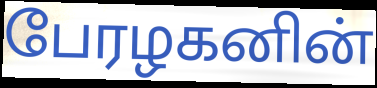
பேரழகனின்